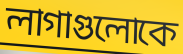
লাগাগুলোকে